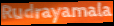
Rudrayamala